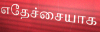
எதேச்சையாக